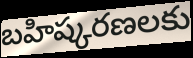
బహిష్కరణలకు